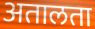
अतालता